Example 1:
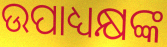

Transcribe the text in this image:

ଉପାଧ୍ୟକ୍ଷଙ୍କ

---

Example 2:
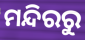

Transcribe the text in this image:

ମନ୍ଦିରରୁ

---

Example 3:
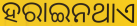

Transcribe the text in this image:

ହରାଇନଥାଏ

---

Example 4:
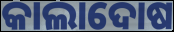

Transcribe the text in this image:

କାଲାଦୋଷ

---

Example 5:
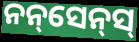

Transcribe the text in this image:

ନନ୍‌ସେନ୍‌ସ୍